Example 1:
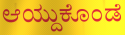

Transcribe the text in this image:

ಆಯ್ದುಕೊಂಡೆ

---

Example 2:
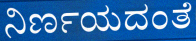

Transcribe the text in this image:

ನಿರ್ಣಯದಂತೆ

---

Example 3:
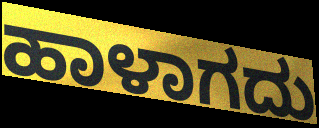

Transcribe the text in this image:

ಹಾಳಾಗದು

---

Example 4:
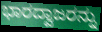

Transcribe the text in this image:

ಭಾರದ್ವಾಜರನ್ನು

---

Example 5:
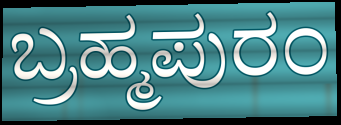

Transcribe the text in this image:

ಬ್ರಹ್ಮಪುರಂ